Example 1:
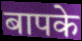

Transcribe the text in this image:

बापके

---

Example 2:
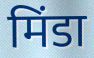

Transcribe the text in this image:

मिंडा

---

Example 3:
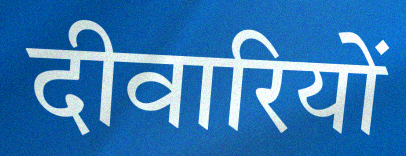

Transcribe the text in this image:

दीवारियों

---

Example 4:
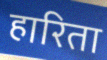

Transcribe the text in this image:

हारिता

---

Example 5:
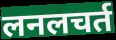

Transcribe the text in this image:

लनलचर्त